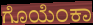
ಗೊಯೆಂಕಾ